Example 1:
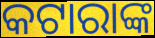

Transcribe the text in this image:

କଟାରାଙ୍କ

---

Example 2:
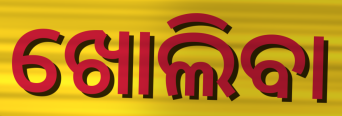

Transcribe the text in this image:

ଖୋଲିବା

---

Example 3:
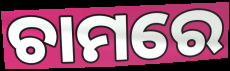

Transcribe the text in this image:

ଚାମରେ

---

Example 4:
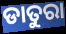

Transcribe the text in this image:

ଡାତୁରା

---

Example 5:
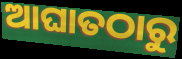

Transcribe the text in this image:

ଆଘାତଠାରୁ